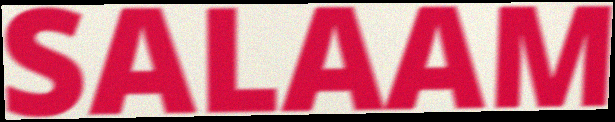
SALAAM